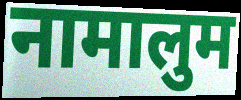
नामालुम